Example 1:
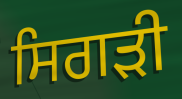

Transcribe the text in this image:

ਸਿਗੜੀ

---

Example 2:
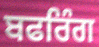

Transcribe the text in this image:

ਬਫਰਿੰਗ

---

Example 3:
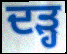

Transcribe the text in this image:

ਦੜ੍ਹ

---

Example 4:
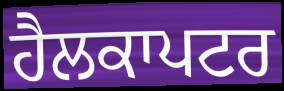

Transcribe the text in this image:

ਹੈਲਕਾਪਟਰ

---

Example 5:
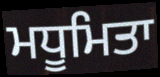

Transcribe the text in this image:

ਮਧੂਮਿਤਾ